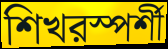
শিখরস্পর্শী